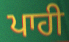
ਪਾਹੀ